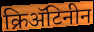
क्रिॲटिनीन